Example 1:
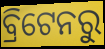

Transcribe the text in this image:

ବ୍ରିଟେନରୁ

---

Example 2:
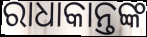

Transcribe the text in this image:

ରାଧାକାନ୍ତଙ୍କ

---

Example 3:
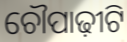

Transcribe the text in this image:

ଚୌପାଢ଼ୀଟି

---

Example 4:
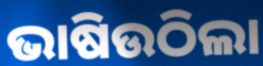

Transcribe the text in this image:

ଭାଷିଉଠିଲା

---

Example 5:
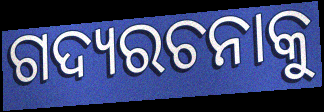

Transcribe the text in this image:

ଗଦ୍ୟରଚନାକୁ